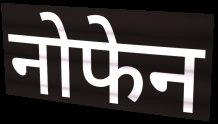
नोफेन